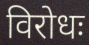
विरोधः